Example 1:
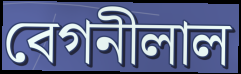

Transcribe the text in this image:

বেগনীলাল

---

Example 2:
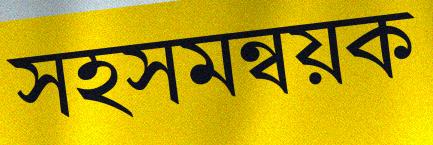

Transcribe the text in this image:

সহসমন্বয়ক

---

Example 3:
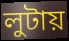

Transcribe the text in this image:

লুটায়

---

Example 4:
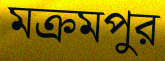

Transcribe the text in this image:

মক্রমপুর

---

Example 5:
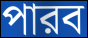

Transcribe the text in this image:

পারব